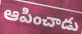
ఆపించాడు